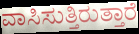
ವಾಸಿಸುತ್ತಿರುತ್ತಾರೆ